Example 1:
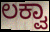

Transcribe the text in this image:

ಲಕ್ವಾ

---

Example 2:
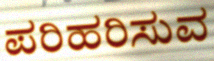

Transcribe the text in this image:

ಪರಿಹರಿಸುವ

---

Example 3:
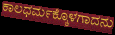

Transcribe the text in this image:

ಕಾಲಧರ್ಮಕ್ಕೊಳಗಾದನು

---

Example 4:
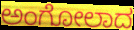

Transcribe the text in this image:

ಅಂಗೋಲಾದ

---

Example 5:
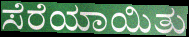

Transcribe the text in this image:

ಸೆರೆಯಾಯಿತು